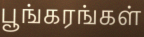
பூங்கரங்கள்